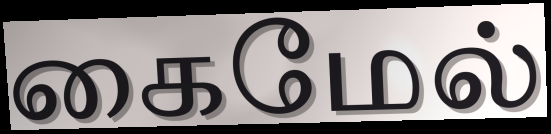
கைமேல்